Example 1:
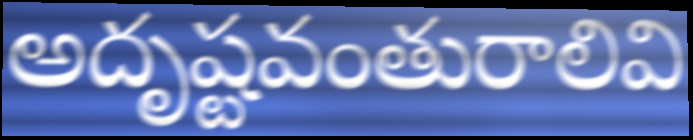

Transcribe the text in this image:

అదృష్టవంతురాలివి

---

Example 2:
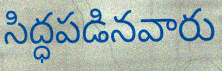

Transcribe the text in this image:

సిద్ధపడినవారు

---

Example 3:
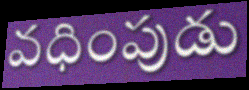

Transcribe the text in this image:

వధింపుడు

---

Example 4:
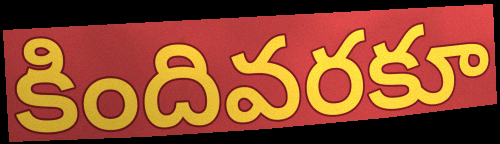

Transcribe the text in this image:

కిందివరకూ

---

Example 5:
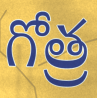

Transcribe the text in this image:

గోత్ర